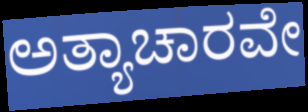
ಅತ್ಯಾಚಾರವೇ